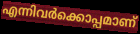
എന്നിവർക്കൊപ്പമാണ്